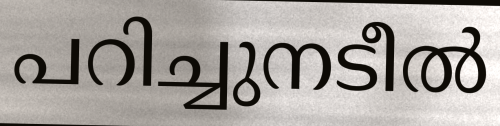
പറിച്ചുനടീൽ